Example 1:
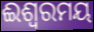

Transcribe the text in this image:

ଈଶ୍ଵରମୟ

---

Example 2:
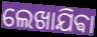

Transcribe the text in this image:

ଲେଖାଯିଵା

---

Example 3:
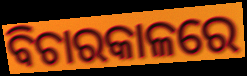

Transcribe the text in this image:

ବିଚାରକାଳରେ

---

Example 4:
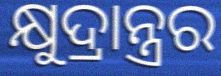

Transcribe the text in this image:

କ୍ଷୁଦ୍ରାନ୍ତ୍ରର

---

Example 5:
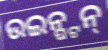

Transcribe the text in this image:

ଉଇନ୍ଷ୍ଟନ୍